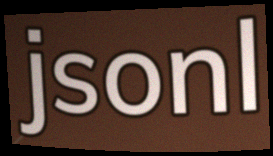
jsonl